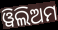
ୱିଲିଅମ